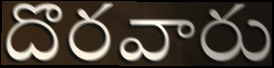
దొరవారు